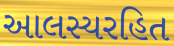
આલસ્યરહિત